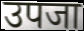
उपजा